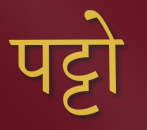
पट्टो